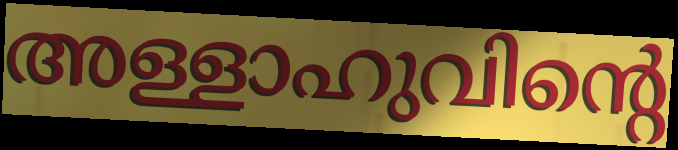
അള്ളാഹുവിന്റെ